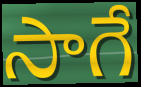
సాగే